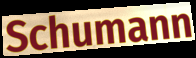
Schumann